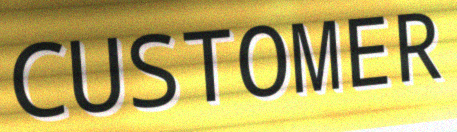
CUSTOMER